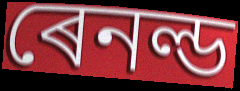
ৰেনল্ড